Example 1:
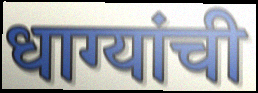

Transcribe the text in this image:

धाग्यांची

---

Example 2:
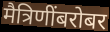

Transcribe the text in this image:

मैत्रिणींबरोबर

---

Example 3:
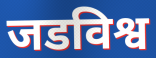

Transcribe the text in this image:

जडविश्व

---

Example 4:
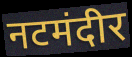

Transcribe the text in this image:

नटमंदीर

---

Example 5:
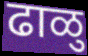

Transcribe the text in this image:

ढाळु